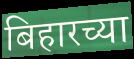
बिहारच्या